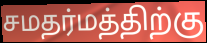
சமதர்மத்திற்கு